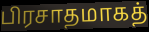
பிரசாதமாகத்